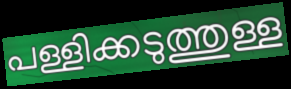
പള്ളിക്കടുത്തുള്ള